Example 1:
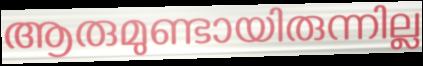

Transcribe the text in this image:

ആരുമുണ്ടായിരുന്നില്ല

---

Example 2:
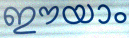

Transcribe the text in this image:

ഈയാം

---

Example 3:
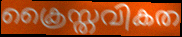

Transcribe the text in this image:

ക്രൈസ്തവികത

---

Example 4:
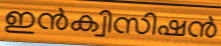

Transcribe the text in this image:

ഇൻക്വിസിഷൻ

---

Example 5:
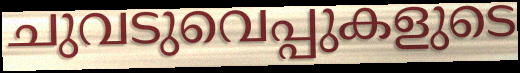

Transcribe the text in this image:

ചുവടുവെപ്പുകളുടെ